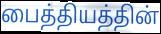
பைத்தியத்தின்